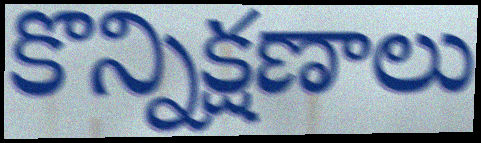
కొన్నిక్షణాలు